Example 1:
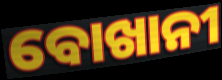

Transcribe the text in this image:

ବୋଖାନୀ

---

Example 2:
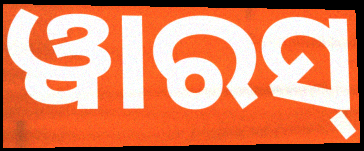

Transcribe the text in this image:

ୱାରସ୍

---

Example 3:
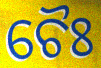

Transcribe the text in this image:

ଚୈଃ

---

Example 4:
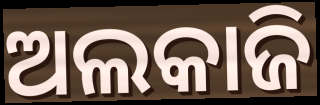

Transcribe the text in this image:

ଅଲକାଜି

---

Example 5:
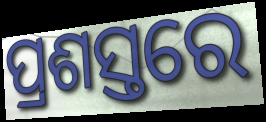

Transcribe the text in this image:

ପ୍ରଶସ୍ତରେ